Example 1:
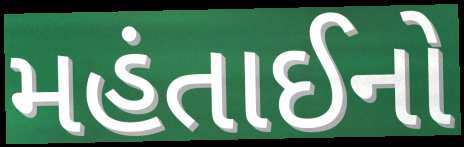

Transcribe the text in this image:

મહંતાઈનો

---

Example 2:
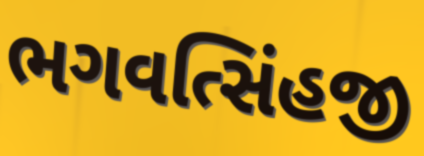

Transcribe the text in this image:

ભગવત્સિંહજી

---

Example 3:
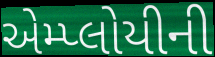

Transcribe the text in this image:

એમ્પ્લોયીની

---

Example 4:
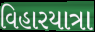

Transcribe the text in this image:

વિહારયાત્રા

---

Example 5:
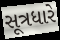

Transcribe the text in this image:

સૂત્રધારે